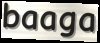
baaga